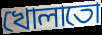
খোলাতো